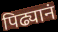
पिढ्यानं